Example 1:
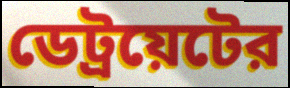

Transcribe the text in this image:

ডেট্রয়েটের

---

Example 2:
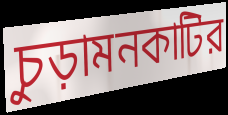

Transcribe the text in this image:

চুড়ামনকাটির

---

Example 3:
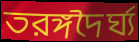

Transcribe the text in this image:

তরঙ্গদৈর্ঘ্য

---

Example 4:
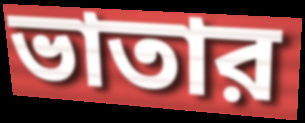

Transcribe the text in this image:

ভাতার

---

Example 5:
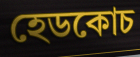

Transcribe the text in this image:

হেডকোচ